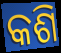
କଶି